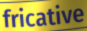
fricative